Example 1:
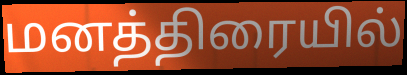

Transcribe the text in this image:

மனத்திரையில்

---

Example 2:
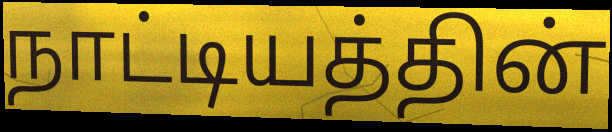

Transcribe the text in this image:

நாட்டியத்தின்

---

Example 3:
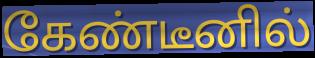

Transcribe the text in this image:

கேண்டீனில்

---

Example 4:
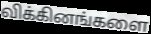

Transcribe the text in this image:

விக்கினங்களை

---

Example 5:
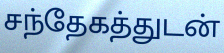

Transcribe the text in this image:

சந்தேகத்துடன்